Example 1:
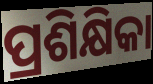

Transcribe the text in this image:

ପ୍ରଶିକ୍ଷିକା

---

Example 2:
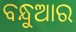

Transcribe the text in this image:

ବନ୍ଧୁଆର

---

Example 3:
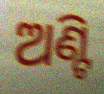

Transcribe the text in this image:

ଅଣ୍ଟି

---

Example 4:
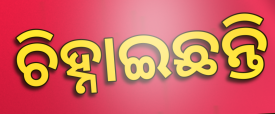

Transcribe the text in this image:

ଚିହ୍ନାଇଛନ୍ତି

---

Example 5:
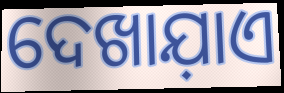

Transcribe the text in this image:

ଦେଖାଯ଼ାଏ